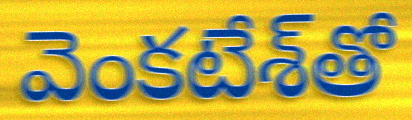
వెంకటేశ్‌తో